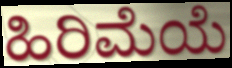
ಹಿರಿಮೆಯೆ